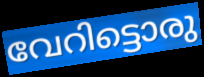
വേറിട്ടൊരു